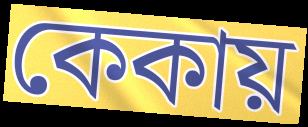
কেকায়